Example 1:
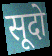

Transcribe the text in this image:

सूदो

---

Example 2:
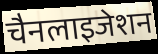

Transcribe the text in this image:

चैनलाइजेशन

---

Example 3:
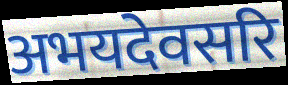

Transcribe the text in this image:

अभयदेवसरि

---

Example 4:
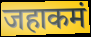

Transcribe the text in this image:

जहाकमं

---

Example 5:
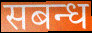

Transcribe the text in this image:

सबन्ध